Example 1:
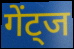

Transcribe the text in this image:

गेंट्ज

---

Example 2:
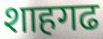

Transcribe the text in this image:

शाहगढ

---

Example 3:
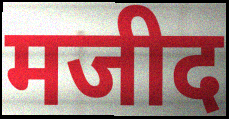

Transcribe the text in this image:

मजीद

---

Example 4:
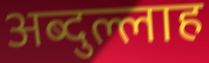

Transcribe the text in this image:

अब्दुल्लाह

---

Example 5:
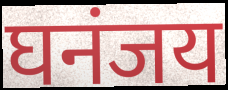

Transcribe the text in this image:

घनंजय